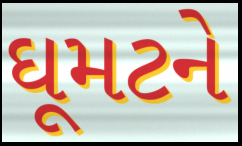
ઘૂમટને